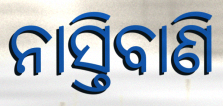
ନାସ୍ତିବାଣି